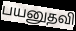
பயனுதவி